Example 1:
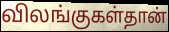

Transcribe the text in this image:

விலங்குகள்தான்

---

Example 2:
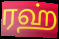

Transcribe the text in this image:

ரஹ்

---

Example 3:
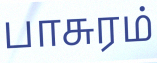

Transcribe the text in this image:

பாசுரம்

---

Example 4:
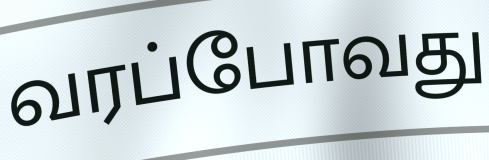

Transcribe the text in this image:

வரப்போவது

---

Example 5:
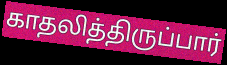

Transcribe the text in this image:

காதலித்திருப்பார்